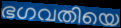
ഭഗവതിയെ